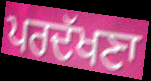
ਪਰਦੱਖਣਾ